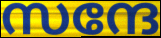
സന്ദേ